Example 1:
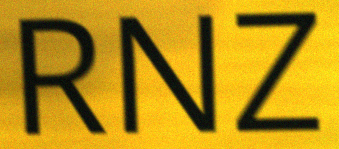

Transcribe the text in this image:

RNZ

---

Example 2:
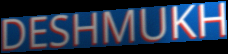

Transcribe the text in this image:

DESHMUKH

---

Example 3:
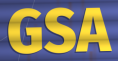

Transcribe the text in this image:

GSA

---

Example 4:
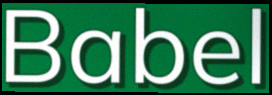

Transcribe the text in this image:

Babel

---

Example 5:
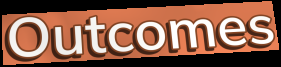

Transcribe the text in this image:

Outcomes